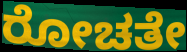
ರೋಚತೇ